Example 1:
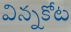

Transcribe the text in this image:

విన్నకోట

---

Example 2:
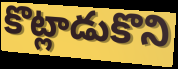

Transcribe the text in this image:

కొట్లాడుకొని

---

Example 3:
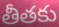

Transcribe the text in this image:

తీతకు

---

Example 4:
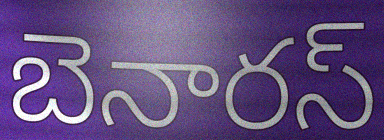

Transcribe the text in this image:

బెనారస్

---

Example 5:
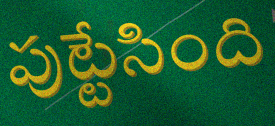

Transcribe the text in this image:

పుట్టేసింది